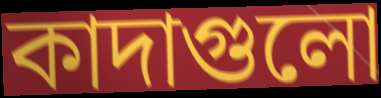
কাদাগুলো